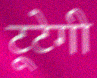
टूटेगी